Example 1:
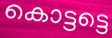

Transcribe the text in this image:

കൊട്ടട്ടെ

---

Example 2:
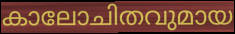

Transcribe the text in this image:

കാലോചിതവുമായ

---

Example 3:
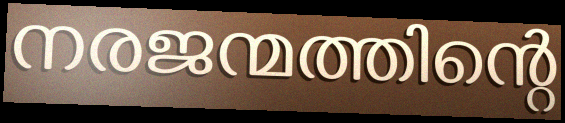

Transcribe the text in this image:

നരജന്മത്തിന്റെ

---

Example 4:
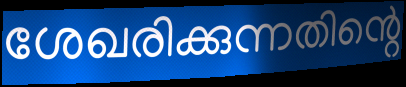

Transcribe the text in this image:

ശേഖരിക്കുന്നതിന്റെ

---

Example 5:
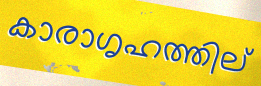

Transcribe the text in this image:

കാരാഗൃഹത്തില്